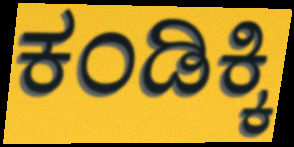
ಕಂಡಿಕ್ಕಿ